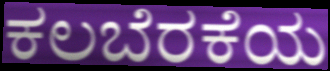
ಕಲಬೆರಕೆಯ